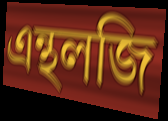
এন্থলজি